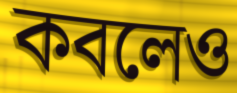
কবলেও